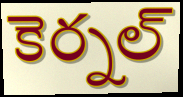
కెర్నల్